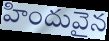
హిందువైన